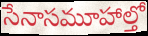
సేనాసమూహాల్తో